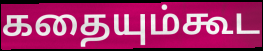
கதையும்கூட